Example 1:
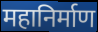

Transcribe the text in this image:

महानिर्माण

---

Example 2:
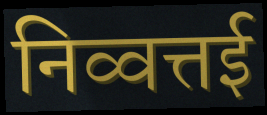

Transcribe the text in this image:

निव्वत्तई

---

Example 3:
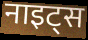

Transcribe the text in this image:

नाइट्स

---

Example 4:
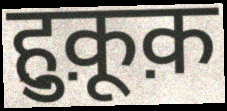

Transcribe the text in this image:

ह़ुक़ूक़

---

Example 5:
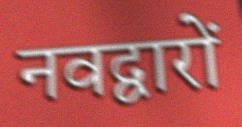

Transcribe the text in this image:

नवद्वारों